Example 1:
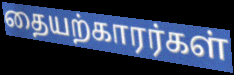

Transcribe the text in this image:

தையற்காரர்கள்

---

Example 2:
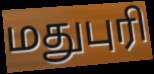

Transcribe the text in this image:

மதுபுரி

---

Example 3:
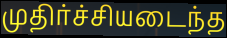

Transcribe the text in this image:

முதிர்ச்சியடைந்த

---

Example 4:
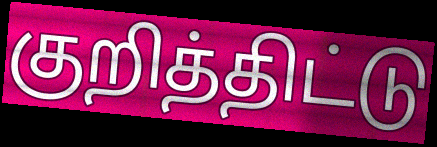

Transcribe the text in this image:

குறித்திட்டு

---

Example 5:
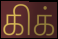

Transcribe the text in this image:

கிக்